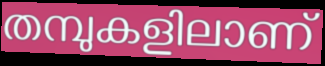
തമ്പുകളിലാണ്